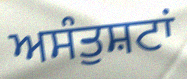
ਅਸੰਤੁਸ਼ਟਾਂ